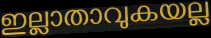
ഇല്ലാതാവുകയല്ല